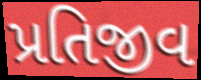
પ્રતિજીવ